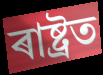
ৰাষ্ট্ৰত